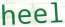
heel